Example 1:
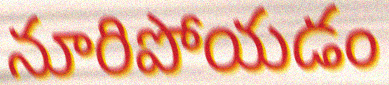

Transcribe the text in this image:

నూరిపోయడం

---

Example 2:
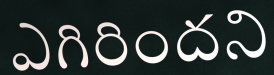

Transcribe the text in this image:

ఎగిరిందని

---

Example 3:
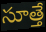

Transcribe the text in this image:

సూత్తే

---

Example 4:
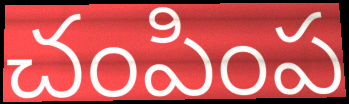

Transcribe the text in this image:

చంపింప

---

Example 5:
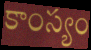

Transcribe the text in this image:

కాంస్యం